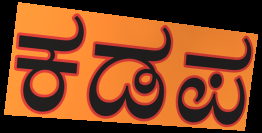
ಕಡಪ